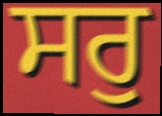
ਸਰੁ